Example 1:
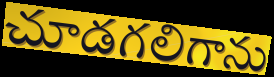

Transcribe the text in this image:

చూడగలిగాను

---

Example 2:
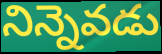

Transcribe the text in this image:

నిన్నెవడు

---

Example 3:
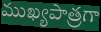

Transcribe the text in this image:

ముఖ్యపాత్రగా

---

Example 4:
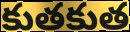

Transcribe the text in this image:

కుతకుత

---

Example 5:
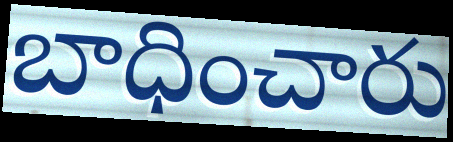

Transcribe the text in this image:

బాధించారు